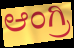
ಆಂಗ್ರಿ